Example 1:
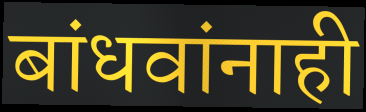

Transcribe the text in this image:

बांधवांनाही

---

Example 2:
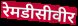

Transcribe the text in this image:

रेमडीसीवीर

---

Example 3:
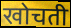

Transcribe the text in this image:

खोचती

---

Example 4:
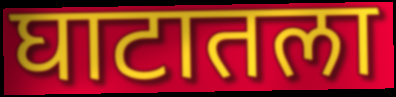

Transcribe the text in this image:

घाटातला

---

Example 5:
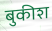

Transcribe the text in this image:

बुकीश